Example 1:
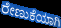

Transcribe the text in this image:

ರೇಣುಕೆಯಾಗಿ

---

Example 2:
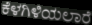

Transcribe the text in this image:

ಕೆಳಗಿಳಿಯಲಾರೆ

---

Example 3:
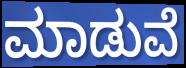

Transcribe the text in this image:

ಮಾಡುವೆ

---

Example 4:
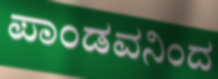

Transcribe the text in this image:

ಪಾಂಡವನಿಂದ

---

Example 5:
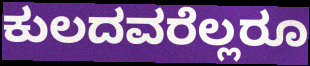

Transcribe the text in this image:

ಕುಲದವರೆಲ್ಲರೂ